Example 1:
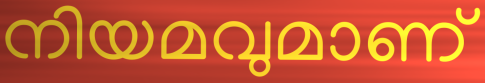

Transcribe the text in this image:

നിയമവുമാണ്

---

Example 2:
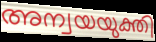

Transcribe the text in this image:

അന്വയയുക്തി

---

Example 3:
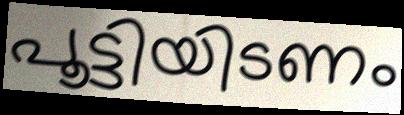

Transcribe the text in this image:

പൂട്ടിയിടണം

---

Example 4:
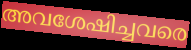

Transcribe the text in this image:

അവശേഷിച്ചവരെ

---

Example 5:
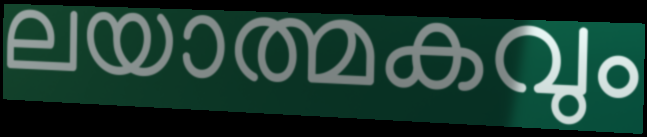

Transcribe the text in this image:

ലയാത്മകവും